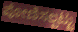
ಪೋಣಿಸಲ್ಪಟ್ಟು